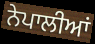
ਨੇਪਾਲੀਆਂ